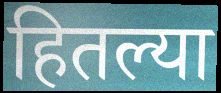
हितल्या